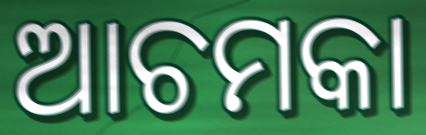
ଆଚମକା